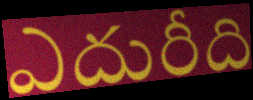
ఎదురీది